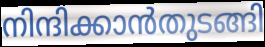
നിന്ദിക്കാൻതുടങ്ങി